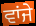
ਵਾਂਜੇ